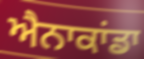
ਐਨਾਕਾਂਡਾ